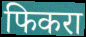
फिकरा